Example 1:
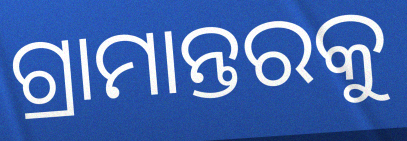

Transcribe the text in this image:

ଗ୍ରାମାନ୍ତରକୁ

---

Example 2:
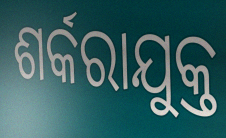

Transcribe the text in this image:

ଶର୍କରାଯୁକ୍ତ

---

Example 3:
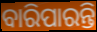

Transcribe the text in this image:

ବାରିପାରନ୍ତି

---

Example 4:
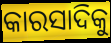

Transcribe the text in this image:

କାରସାଦିକୁ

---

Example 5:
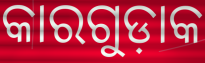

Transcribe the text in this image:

କାରଗୁଡ଼ାକ